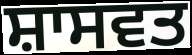
ਸ਼ਾਸਵਤ